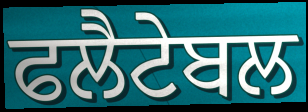
ਫਲੈਟੇਬਲ